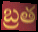
బ్రత